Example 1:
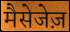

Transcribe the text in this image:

मैसेजेज़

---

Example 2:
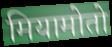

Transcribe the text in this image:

मियामोतो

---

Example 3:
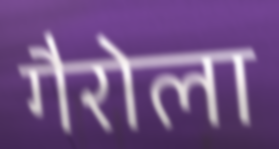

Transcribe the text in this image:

गैरोला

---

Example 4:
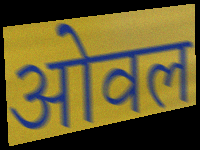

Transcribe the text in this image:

ओवल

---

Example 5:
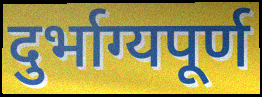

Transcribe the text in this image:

दुर्भाग्यपूर्ण